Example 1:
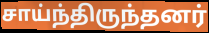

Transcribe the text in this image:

சாய்ந்திருந்தனர்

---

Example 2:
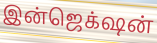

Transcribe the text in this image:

இன்ஜெக்‌ஷன்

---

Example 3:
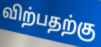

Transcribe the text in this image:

விற்பதற்கு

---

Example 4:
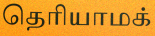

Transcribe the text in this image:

தெரியாமக்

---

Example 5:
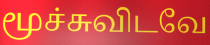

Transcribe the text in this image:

மூச்சுவிடவே